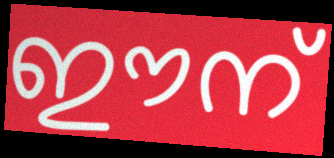
ഈന്